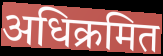
अधिक्रमित